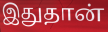
இதுதான்